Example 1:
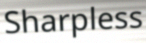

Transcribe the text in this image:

Sharpless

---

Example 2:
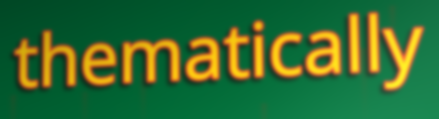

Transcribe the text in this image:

thematically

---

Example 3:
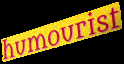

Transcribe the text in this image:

humourist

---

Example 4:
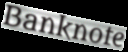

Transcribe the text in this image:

Banknote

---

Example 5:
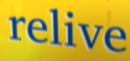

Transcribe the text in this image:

relive